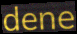
dene